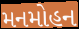
મનમોહન